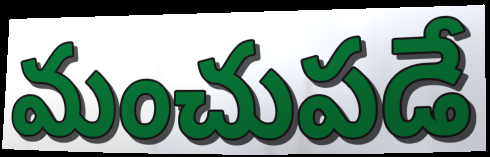
మంచుపడే